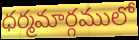
ధర్మమార్గములో